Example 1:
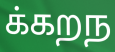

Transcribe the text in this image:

க்கறந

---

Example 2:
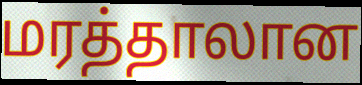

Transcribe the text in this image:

மரத்தாலான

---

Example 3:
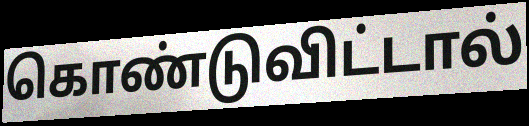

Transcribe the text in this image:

கொண்டுவிட்டால்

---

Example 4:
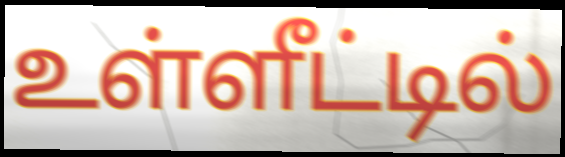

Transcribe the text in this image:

உள்ளீட்டில்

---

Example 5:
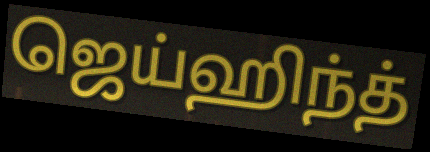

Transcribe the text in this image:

ஜெய்ஹிந்த்